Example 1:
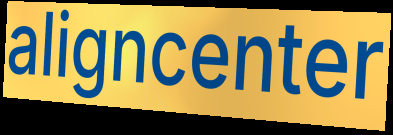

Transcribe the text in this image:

aligncenter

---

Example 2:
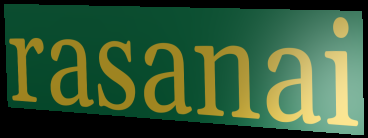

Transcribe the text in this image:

rasanai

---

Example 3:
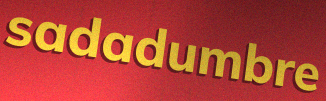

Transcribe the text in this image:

sadadumbre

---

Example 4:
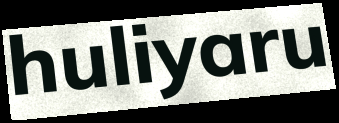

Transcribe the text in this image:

huliyaru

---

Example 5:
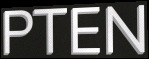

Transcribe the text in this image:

PTEN